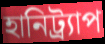
হানিট্র্যাপ